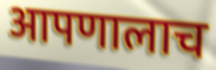
आपणालाच